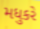
મધુકરે